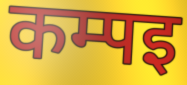
कम्पइ